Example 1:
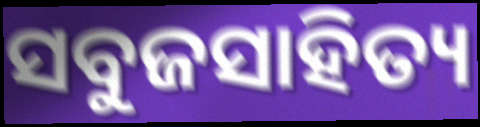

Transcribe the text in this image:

ସବୁଜସାହିତ୍ୟ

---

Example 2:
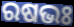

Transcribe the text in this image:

ରଷଭଃ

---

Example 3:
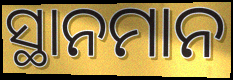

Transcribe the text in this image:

ସ୍ଥାନମାନ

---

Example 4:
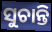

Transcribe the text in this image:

ସୁଚାନ୍ତି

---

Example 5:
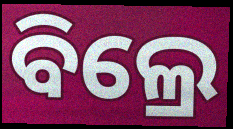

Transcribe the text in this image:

ବିଲ୍ରେ